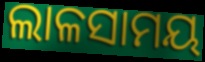
ଲାଳସାମୟ